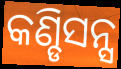
କଣ୍ଡିସନ୍ସ